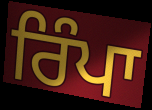
ਰਿੰਪਾ